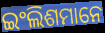
ଇଂଲିଶମାନେ